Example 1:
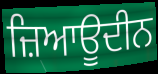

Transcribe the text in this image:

ਜ਼ਿਆਊਦੀਨ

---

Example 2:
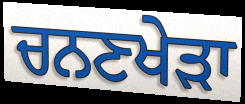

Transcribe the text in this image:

ਚਨਣਖੇੜਾ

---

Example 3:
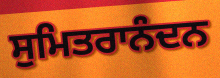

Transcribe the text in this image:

ਸੁਮਿਤਰਾਨੰਦਨ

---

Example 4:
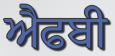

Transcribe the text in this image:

ਐਫਬੀ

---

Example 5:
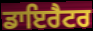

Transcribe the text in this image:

ਡਾਇਰੈਟਰ